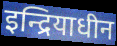
इन्द्रियाधीन